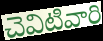
చెవిటివారి